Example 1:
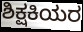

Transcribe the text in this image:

ಶಿಕ್ಷಕಿಯರ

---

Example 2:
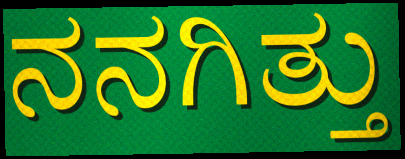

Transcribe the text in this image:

ನನಗಿತ್ತು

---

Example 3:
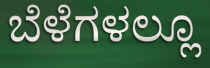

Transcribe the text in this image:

ಬೆಳೆಗಳಲ್ಲೂ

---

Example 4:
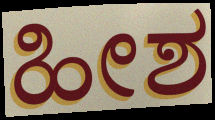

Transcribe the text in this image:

ಹೀಶ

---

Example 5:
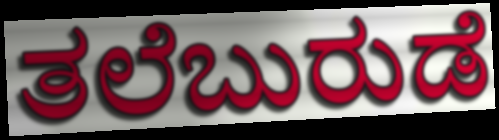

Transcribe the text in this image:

ತಲೆಬುರುಡೆ